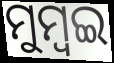
ମୁମ୍ବଇ